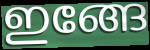
ഇങ്ങേ